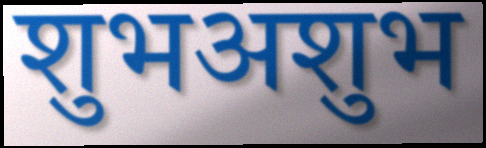
शुभअशुभ